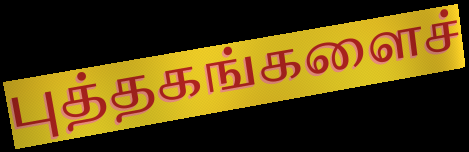
புத்தகங்களைச்